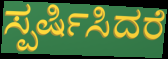
ಸ್ಪರ್ಷಿಸಿದರೆ